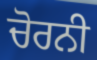
ਚੋਰਨੀ